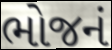
ભોજનં